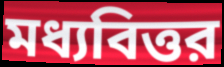
মধ্যবিত্তর